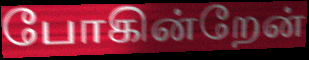
போகின்றேன்